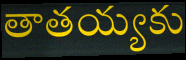
తాతయ్యకు